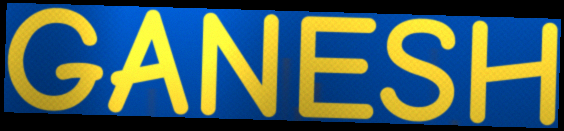
GANESH